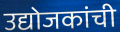
उद्योजकांची